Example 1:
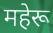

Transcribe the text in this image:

महेरू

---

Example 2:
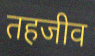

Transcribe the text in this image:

तहजीव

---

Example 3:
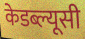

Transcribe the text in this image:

केडब्ल्यूसी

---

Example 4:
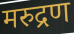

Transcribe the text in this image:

मरुद्रण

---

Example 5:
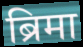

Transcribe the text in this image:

ब्रिमा